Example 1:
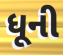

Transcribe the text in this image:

ધૂની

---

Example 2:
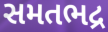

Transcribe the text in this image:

સમતભદ્ર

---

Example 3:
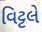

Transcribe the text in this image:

વિટ્ટલે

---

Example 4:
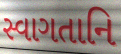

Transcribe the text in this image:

સ્વાગતાનિ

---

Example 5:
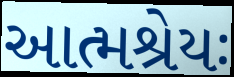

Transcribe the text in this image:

આત્મશ્રેયઃ